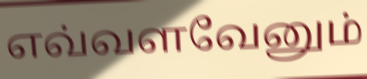
எவ்வளவேனும்